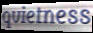
quietness